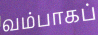
வம்பாகப்